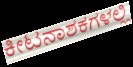
ಕೀಟನಾಶಕಗಳಲ್ಲಿ